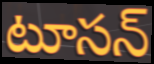
టూసన్